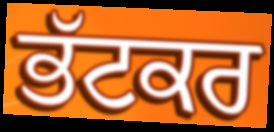
ਭੱਟਕਰ